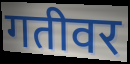
गतीवर